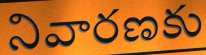
నివారణకు